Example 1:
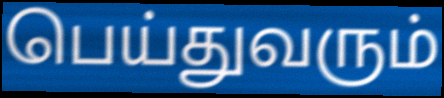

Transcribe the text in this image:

பெய்துவரும்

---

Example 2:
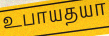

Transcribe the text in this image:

உபாயதயா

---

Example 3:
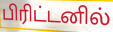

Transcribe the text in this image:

பிரிட்டனில்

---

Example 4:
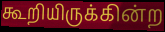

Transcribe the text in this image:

கூறியிருக்கின்ற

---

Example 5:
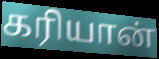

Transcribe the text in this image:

கரியான்